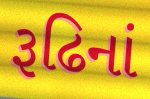
રૂઢિનાં